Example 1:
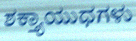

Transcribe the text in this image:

ಶಕ್ತ್ಯಾಯುಧಗಳು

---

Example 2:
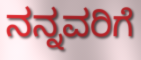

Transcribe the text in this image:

ನನ್ನವರಿಗೆ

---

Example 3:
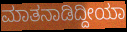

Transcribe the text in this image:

ಮಾತನಾಡಿದ್ದೀಯಾ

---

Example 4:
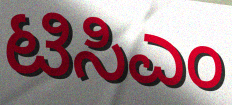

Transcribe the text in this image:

ಟಿಸಿಎಂ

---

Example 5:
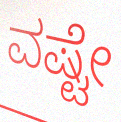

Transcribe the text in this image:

ವಷ್ಟೇ